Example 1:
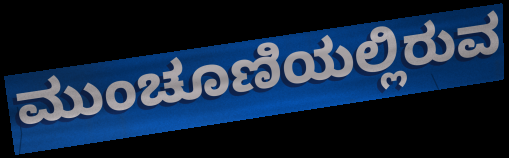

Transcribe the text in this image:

ಮುಂಚೂಣಿಯಲ್ಲಿರುವ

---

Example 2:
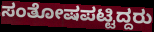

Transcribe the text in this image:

ಸಂತೋಷಪಟ್ಟಿದ್ದರು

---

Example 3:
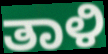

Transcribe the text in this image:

ತಾಳಿ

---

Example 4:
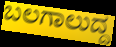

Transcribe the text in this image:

ಬಲಗಾಲುದ್ದ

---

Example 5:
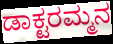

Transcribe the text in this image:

ಡಾಕ್ಟರಮ್ಮನ